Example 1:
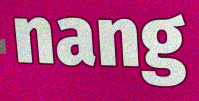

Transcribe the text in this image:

nang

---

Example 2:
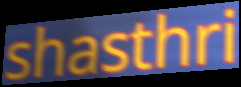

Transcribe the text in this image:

shasthri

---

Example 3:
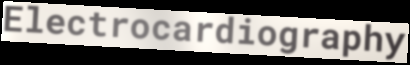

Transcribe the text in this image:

Electrocardiography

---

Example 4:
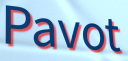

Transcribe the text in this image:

Pavot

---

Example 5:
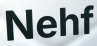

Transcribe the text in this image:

Nehf